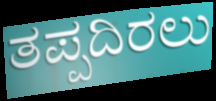
ತಪ್ಪದಿರಲು